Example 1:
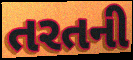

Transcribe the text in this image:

તરતની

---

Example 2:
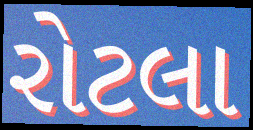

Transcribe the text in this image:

રોટલા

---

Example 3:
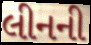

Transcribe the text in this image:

લીનની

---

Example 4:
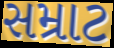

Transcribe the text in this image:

સમ્રાટ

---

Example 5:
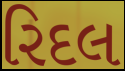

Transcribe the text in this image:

રિદલ